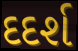
દદર્શ